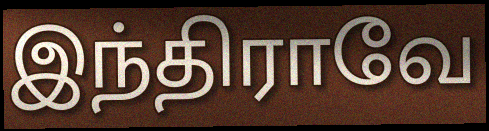
இந்திராவே